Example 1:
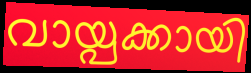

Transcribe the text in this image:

വായ്പക്കായി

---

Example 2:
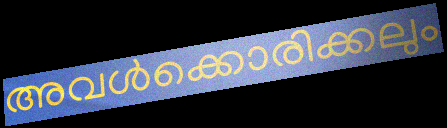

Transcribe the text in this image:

അവൾക്കൊരിക്കലും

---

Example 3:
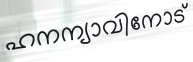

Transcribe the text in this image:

ഹനന്യാവിനോട്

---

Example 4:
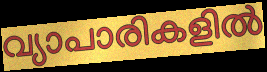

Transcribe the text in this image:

വ്യാപാരികളിൽ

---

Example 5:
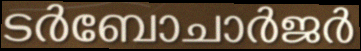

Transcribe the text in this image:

ടർബോചാർജർ